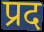
प्रद